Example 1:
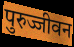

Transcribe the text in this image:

पुरुज्जीवन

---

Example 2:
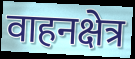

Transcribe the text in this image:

वाहनक्षेत्र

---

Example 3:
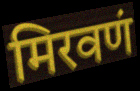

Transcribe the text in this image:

मिरवणं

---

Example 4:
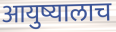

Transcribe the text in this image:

आयुष्यालाच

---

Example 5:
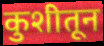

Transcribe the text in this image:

कुशीतून